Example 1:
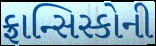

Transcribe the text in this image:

ફ્રાન્સિસ્કોની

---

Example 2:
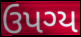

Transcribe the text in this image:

ઉપગ્ય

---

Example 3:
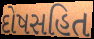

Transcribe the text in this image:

દોષસહિત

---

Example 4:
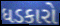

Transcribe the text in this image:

ધડકારો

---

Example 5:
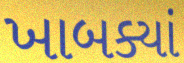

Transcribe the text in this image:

ખાબક્યાં